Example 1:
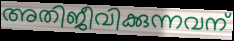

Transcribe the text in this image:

അതിജീവിക്കുന്നവന്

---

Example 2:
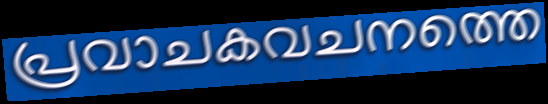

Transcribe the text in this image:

പ്രവാചകവചനത്തെ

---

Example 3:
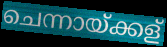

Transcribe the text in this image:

ചെന്നായ്ക്കള്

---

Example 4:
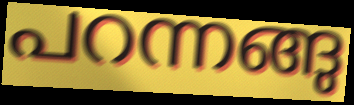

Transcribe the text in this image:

പറന്നങ്ങു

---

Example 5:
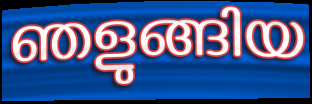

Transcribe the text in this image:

ഞളുങ്ങിയ